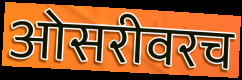
ओसरीवरच